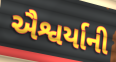
ઐશ્વર્યાની